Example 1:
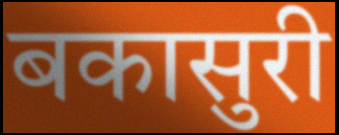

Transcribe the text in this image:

बकासुरी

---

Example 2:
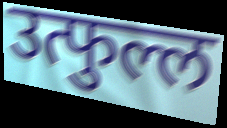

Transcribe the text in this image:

उत्फुल्ल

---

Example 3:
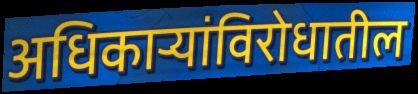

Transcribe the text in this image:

अधिकाऱ्यांविरोधातील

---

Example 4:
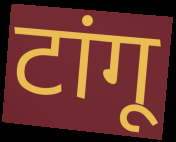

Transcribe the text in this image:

टांगू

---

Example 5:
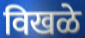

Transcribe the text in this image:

विखळे